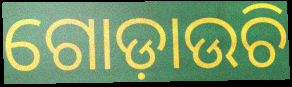
ଗୋଡ଼ାଉଚି